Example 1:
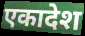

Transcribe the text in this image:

एकादेश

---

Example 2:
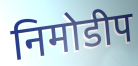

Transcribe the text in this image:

निमोडीप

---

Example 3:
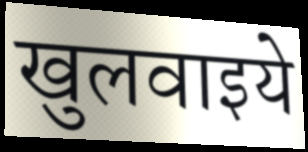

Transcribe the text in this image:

खुलवाइये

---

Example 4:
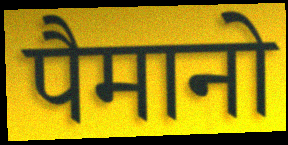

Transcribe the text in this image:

पैमानो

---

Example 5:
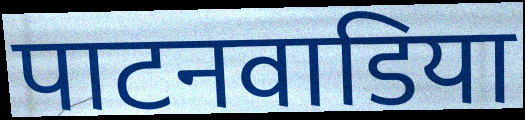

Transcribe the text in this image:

पाटनवाडिया